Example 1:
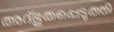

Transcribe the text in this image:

അദ്ഭുതപ്പെടുത്തി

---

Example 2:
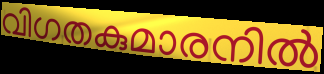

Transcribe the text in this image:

വിഗതകുമാരനിൽ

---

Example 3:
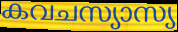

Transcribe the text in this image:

കവചസ്യാസ്യ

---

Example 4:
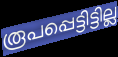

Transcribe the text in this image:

രൂപപ്പെട്ടിട്ടില്ല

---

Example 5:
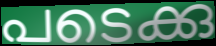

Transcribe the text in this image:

പടെക്കു